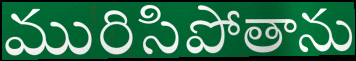
మురిసిపోతాను